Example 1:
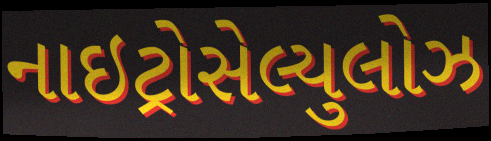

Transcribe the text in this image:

નાઇટ્રોસેલ્યુલોઝ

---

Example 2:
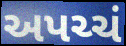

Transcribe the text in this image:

અપચ્ચં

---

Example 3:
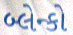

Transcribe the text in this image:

બ્લેન્કો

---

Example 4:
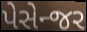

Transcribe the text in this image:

પેસેન્જર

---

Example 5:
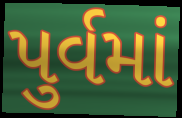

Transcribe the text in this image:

પુર્વમાં